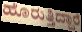
ಹೊರುತ್ತಿದ್ದಾರೆ